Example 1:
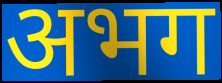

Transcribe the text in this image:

अभग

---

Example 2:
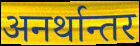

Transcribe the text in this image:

अनर्थान्तर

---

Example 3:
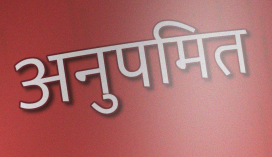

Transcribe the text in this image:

अनुपमित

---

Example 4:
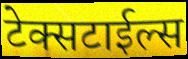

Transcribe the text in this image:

टेक्सटाईल्स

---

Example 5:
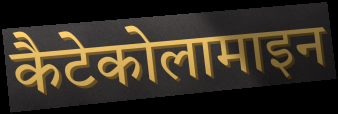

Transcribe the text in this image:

कैटेकोलामाइन